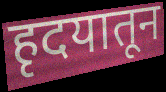
हृदयातून